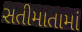
સતીમાતામાં